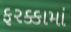
ફરક્કામાં